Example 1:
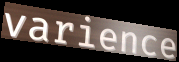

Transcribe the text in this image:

varience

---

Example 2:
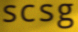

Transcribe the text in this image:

scsg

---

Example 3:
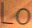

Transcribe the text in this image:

Lo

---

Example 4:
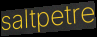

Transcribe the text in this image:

saltpetre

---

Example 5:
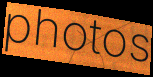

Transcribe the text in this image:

photos